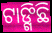
ଟାଙ୍ଗିଛି